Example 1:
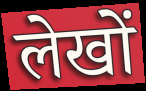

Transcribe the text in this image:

लेखों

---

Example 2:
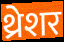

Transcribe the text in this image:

थ्रेशर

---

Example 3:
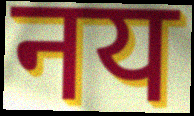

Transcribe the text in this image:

नय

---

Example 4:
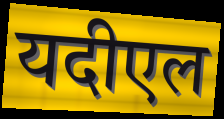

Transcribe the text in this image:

यदीएल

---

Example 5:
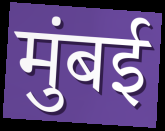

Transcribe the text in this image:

मुंबई